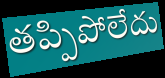
తప్పిపోలేదు